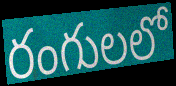
రంగులలో